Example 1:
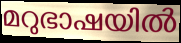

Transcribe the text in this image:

മറുഭാഷയിൽ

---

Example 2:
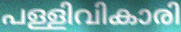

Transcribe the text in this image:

പള്ളിവികാരി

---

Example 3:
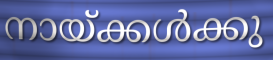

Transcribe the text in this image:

നായ്ക്കൾക്കു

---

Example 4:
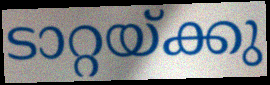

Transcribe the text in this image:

ടാറ്റയ്ക്കു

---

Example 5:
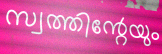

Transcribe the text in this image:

സ്വത്തിന്റേയും